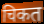
चिकत